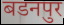
बडनपुर